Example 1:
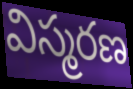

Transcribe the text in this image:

విస్మరణ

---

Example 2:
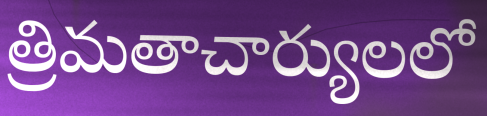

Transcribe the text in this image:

త్రిమతాచార్యులలో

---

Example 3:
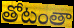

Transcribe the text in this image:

తోటంతా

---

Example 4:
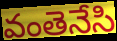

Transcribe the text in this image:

వంతెనేసి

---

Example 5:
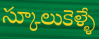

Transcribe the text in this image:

స్కూలుకెళ్ళే